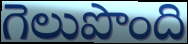
గెలుపొంది